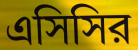
এসিসির